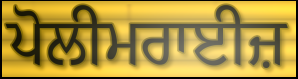
ਪੋਲੀਮਰਾਈਜ਼